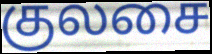
குலசை